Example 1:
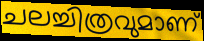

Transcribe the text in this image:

ചലച്ചിത്രവുമാണ്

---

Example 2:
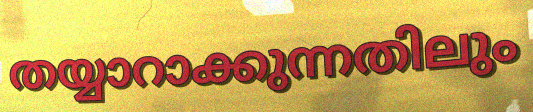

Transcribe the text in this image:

തയ്യാറാക്കുന്നതിലും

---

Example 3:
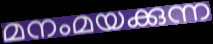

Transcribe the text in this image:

മനംമയക്കുന്ന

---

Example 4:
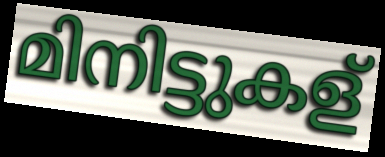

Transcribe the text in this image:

മിനിട്ടുകള്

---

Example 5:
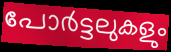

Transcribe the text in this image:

പോർട്ടലുകളും